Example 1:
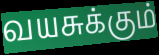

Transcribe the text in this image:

வயசுக்கும்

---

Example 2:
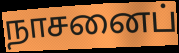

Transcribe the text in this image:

நாசனைப்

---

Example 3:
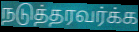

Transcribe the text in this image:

நடுத்தரவர்க்க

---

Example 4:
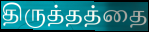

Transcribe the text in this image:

திருத்தத்தை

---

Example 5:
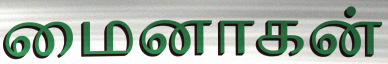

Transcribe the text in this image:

மைனாகன்